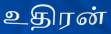
உதிரன்